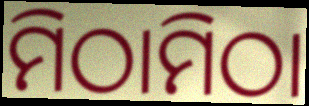
ମିଠାମିଠା